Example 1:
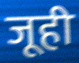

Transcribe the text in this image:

जूही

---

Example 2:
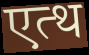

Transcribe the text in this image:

एत्थ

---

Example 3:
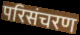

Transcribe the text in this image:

परिसंचरण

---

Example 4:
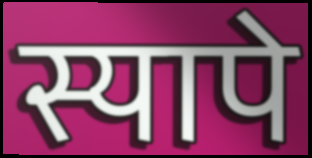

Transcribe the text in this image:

स्यापे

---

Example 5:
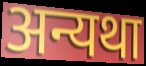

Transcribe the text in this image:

अन्यथा